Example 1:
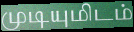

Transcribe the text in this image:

முடியுமிடம்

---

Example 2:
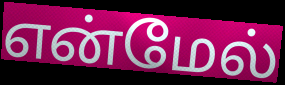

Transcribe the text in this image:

என்மேல்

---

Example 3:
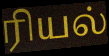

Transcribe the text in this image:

ரியல்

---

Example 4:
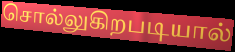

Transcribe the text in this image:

சொல்லுகிறபடியால்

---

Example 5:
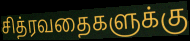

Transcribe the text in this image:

சித்ரவதைகளுக்கு